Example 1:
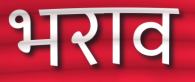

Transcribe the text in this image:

भराव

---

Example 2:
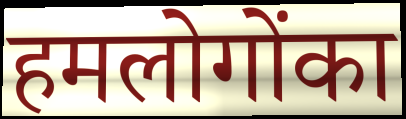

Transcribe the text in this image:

हमलोगोंका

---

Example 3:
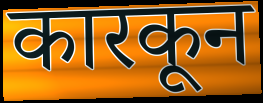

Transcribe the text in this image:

कारकून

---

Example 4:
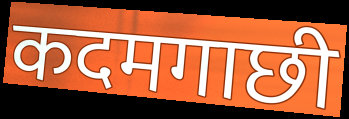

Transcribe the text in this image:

कदमगाछी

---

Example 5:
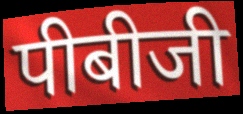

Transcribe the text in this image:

पीबीजी